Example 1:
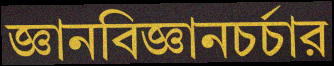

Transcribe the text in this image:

জ্ঞানবিজ্ঞানচর্চার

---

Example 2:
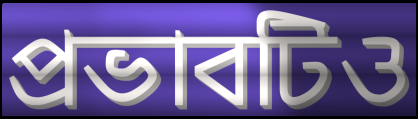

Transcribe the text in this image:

প্রভাবটিও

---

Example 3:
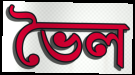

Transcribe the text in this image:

ভৈল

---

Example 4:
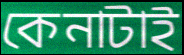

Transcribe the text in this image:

কেনাটাই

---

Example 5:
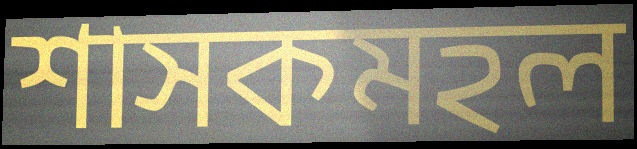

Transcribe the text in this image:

শাসকমহল